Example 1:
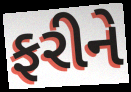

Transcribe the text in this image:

ફરીને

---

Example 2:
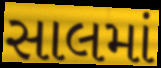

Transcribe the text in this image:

સાલમાં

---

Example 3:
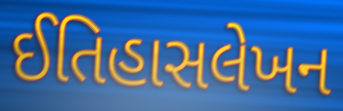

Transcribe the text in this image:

ઈતિહાસલેખન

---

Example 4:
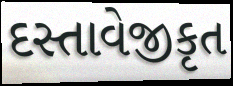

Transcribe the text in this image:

દસ્તાવેજીકૃત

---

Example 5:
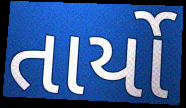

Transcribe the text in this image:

તાર્યો